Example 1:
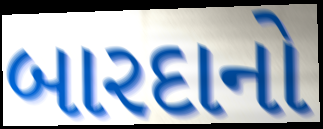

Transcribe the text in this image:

બારદાનો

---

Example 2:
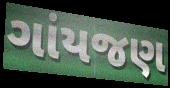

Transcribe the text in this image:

ગાંયજણ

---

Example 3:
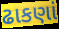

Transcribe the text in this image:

ઢાકણાં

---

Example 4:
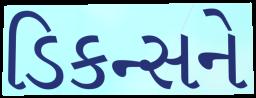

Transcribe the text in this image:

ડિકન્સને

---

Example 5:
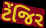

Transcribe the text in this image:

ટેંજિર